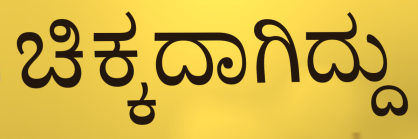
ಚಿಕ್ಕದಾಗಿದ್ದು